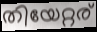
തിയേറ്റര്